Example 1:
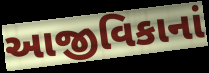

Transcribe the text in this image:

આજીવિકાનાં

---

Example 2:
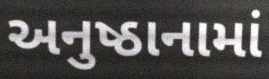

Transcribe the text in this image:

અનુષ્ઠાનામાં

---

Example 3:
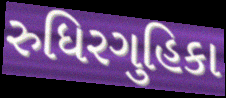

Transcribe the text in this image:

રુધિરગુહિકા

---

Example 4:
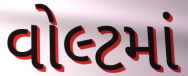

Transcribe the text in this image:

વોલ્ટમાં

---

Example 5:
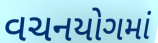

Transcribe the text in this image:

વચનયોગમાં